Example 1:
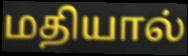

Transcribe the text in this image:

மதியால்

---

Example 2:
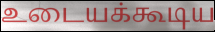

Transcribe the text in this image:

உடையக்கூடிய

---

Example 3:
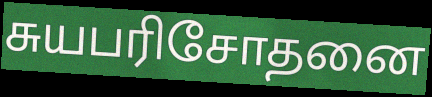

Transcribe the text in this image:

சுயபரிசோதனை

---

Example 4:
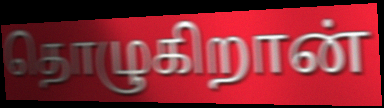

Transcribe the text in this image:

தொழுகிறான்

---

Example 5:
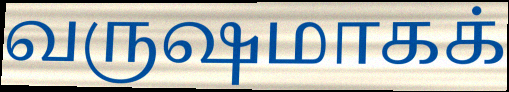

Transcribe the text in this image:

வருஷமாகக்